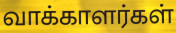
வாக்காளர்கள்